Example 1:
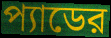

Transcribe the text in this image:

প্যাডের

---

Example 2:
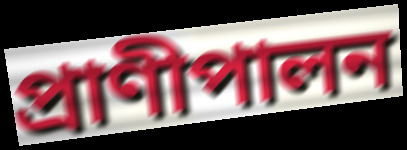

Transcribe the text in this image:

প্রাণীপালন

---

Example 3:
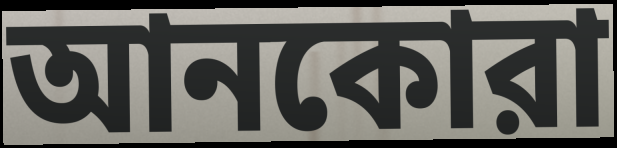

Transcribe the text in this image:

আনকোরা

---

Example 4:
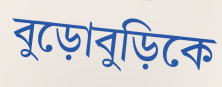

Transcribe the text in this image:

বুড়োবুড়িকে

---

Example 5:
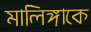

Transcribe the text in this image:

মালিঙ্গাকে